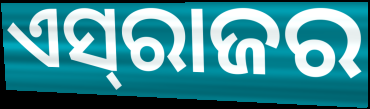
ଏସ୍‍ରାଜର